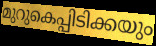
മുറുകെപ്പിടിക്കയും